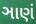
ઞાણં